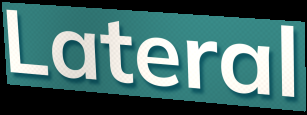
Lateral